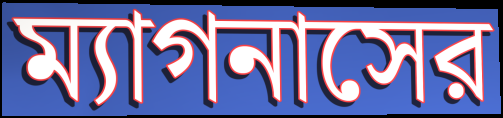
ম্যাগনাসের